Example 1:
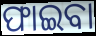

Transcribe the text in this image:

ଫାଇବା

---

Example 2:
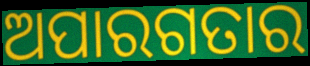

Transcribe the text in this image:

ଅପାରଗତାର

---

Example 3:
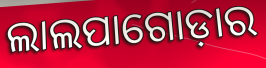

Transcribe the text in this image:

ଲାଲପାଗୋଡ଼ାର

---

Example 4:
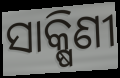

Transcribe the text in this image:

ସାକ୍ଷିଣୀ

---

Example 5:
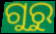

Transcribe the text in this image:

ଗୁରୁ